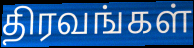
திரவங்கள்